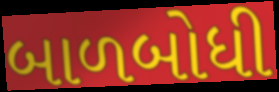
બાળબોધી